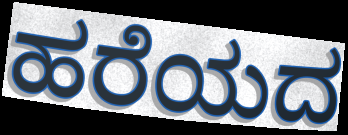
ಹರೆಯದ